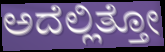
ಅದೆಲ್ಲಿತ್ತೋ